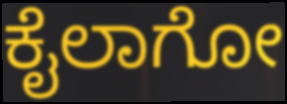
ಕೈಲಾಗೋ